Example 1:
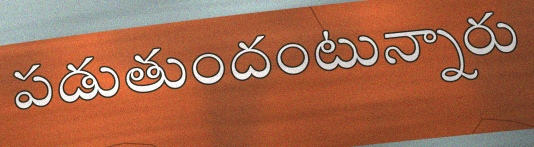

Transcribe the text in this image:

పడుతుందంటున్నారు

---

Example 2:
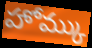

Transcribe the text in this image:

హోమ్కు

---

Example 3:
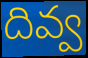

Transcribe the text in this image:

దివ్వ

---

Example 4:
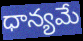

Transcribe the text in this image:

ధాన్యమే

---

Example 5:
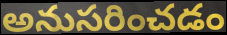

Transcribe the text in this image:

అనుసరించడం